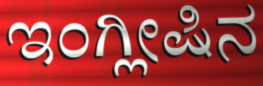
ಇಂಗ್ಲೀಷಿನ